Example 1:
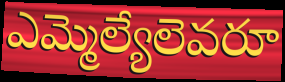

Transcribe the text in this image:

ఎమ్మెల్యేలెవరూ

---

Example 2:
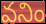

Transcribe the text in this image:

వనిం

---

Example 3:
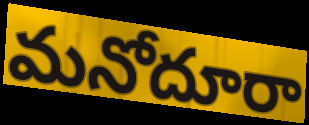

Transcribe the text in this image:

మనోదూరా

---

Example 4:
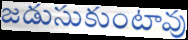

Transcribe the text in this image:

జడుసుకుంటావు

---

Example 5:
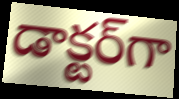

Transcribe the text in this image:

డాక్టర్‌గా